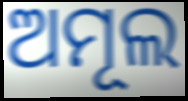
ଅମୂଲ